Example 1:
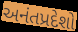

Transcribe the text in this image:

અનંતપ્રદેશો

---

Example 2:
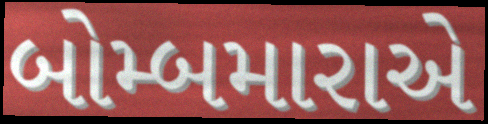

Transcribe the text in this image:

બોમ્બમારાએ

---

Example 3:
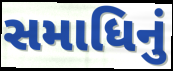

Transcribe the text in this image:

સમાધિનું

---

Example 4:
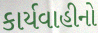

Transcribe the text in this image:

કાર્યવાહીનો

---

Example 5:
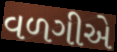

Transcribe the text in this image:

વળગીએ